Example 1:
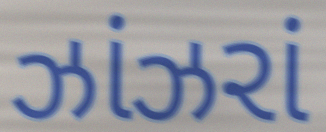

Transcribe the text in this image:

ઝાંઝરાં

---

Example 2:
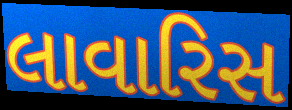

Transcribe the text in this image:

લાવારિસ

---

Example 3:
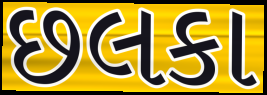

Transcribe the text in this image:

છલકા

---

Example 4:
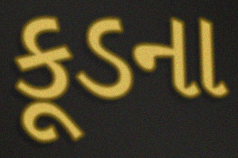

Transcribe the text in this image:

કૂડના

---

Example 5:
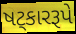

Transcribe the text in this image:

ષટ્કારરૂપે